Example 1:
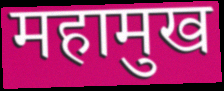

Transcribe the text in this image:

महामुख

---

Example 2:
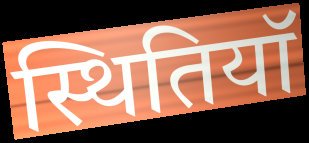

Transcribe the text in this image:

स्थितियॉ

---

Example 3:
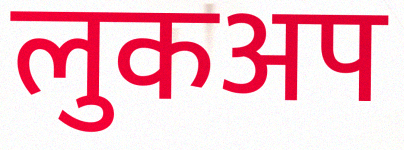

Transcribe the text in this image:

लुकअप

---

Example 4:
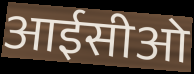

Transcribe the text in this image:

आईसीओ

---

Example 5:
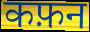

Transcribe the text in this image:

कफ़न